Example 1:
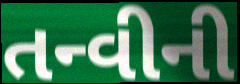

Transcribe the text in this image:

તન્વીની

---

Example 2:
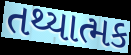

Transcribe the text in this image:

તથ્યાત્મક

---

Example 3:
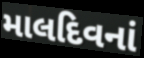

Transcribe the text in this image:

માલદિવનાં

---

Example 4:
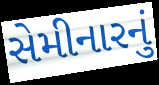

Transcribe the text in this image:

સેમીનારનું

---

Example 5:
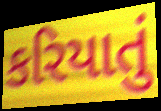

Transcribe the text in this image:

કરિયાતું